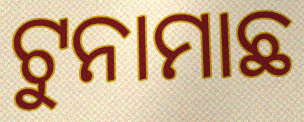
ଟୁନାମାଛ